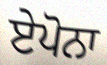
ਏਪੋਨਾ